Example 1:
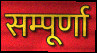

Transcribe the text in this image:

सम्पूर्णा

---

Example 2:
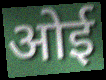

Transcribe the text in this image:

ओई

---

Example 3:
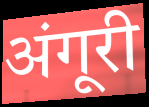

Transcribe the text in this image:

अंगूरी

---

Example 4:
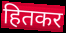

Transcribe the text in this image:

हितकर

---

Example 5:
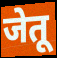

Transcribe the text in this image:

जेतू